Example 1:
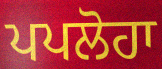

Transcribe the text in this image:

ਪਪਲੋਹਾ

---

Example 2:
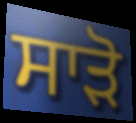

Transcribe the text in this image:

ਸਾੜੋ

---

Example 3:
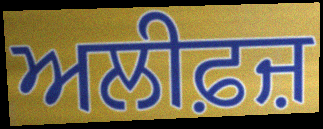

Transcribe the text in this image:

ਅਲੀਫ਼ਜ਼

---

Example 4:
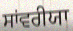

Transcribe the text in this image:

ਸਾਂਵਰੀਯਾ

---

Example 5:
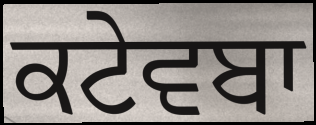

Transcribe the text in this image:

ਕਟੇਵਬਾ